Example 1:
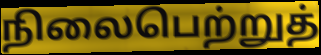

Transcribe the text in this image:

நிலைபெற்றுத்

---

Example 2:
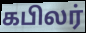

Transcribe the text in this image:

கபிலர்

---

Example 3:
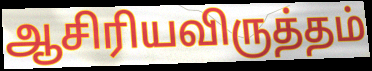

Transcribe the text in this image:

ஆசிரியவிருத்தம்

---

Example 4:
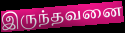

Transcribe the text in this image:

இருந்தவனை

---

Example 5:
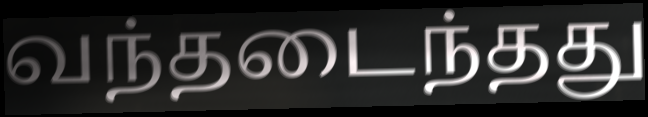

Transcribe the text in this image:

வந்தடைந்தது